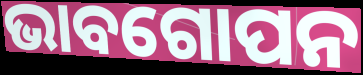
ଭାବଗୋପନ